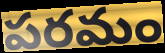
పరమం